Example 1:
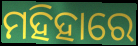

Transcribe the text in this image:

ମହିହାରେ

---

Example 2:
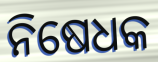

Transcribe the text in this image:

ନିଷେଧକ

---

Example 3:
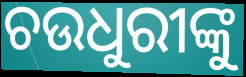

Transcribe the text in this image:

ଚଉଧୁରୀଙ୍କୁ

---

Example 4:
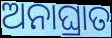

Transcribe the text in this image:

ଅନାଘ୍ରାତ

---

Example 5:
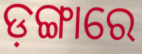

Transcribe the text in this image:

ଡ଼ଙ୍ଗାରେ